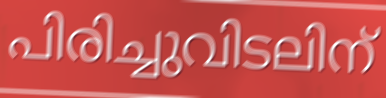
പിരിച്ചുവിടലിന്